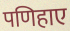
पणिहाए